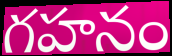
గహనం